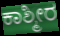
ಕಾಶ್ಮೀರ